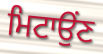
ਮਿਟਾਉਂਣ